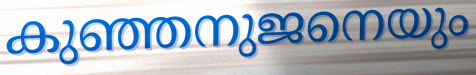
കുഞ്ഞനുജനെയും